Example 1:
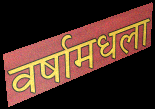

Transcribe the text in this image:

वर्षामधला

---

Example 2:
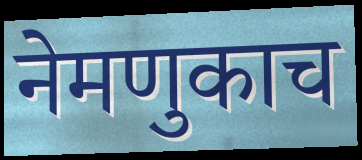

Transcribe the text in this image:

नेमणुकाच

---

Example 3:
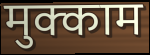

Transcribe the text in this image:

मुक्‍काम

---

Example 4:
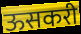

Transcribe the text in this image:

ऊसकरी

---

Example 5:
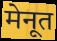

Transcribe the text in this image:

मेनूत